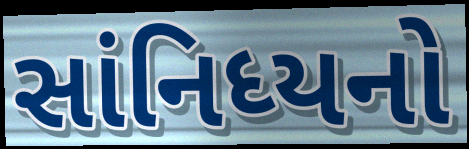
સાંનિધ્યનો